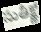
సుతీక్ష్ణో